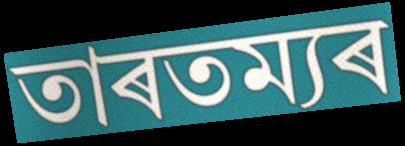
তাৰতম্যৰ